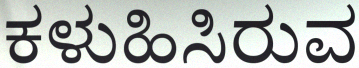
ಕಳುಹಿಸಿರುವ